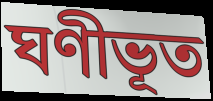
ঘণীভূত